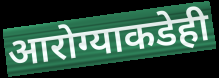
आरोग्याकडेही